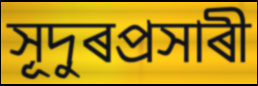
সূদুৰপ্ৰসাৰী